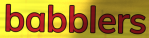
babblers